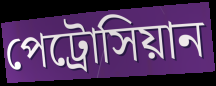
পেট্রোসিয়ান